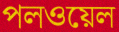
পলওয়েল